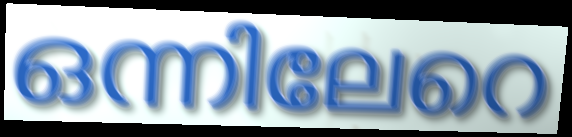
ഒന്നിലേറെ